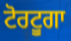
ਟੋਰਟੂਗਾ